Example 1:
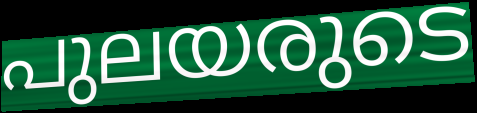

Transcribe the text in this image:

പുലയരുടെ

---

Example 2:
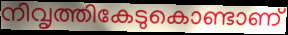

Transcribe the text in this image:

നിവൃത്തികേടുകൊണ്ടാണ്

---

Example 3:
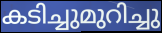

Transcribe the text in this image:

കടിച്ചുമുറിച്ചു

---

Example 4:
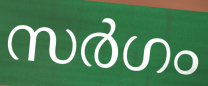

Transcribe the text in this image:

സർഗം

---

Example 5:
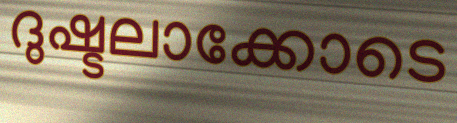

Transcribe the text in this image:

ദുഷ്ടലാക്കോടെ